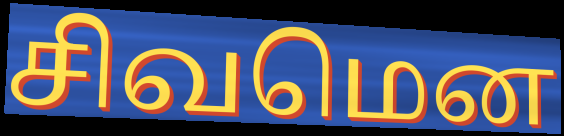
சிவமென